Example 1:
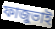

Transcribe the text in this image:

ফাজুভাই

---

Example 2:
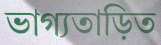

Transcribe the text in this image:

ভাগ্যতাড়িত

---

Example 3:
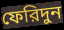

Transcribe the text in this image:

ফেরিদুন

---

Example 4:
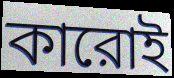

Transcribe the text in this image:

কারোই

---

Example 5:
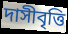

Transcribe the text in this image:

দাসীবৃত্তি